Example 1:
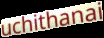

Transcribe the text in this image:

uchithanai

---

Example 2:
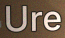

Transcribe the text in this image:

Ure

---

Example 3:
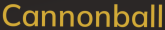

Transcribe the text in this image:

Cannonball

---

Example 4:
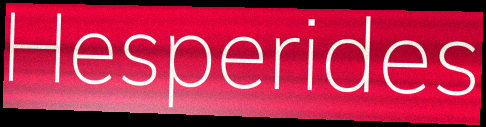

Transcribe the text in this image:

Hesperides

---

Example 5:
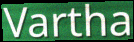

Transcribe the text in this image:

Vartha